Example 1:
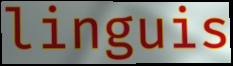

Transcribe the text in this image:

linguis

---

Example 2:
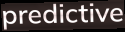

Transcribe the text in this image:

predictive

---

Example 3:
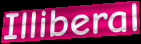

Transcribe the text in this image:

Illiberal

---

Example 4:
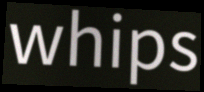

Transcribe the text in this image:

whips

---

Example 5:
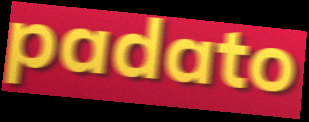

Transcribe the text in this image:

padato